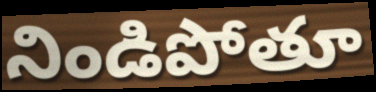
నిండిపోతూ